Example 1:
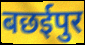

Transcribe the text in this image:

बछईपुर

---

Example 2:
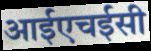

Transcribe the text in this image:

आईएचईसी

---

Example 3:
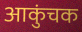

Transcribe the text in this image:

आकुंचक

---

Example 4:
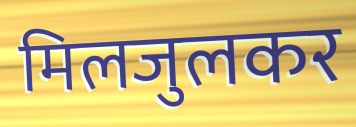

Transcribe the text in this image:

मिलजुलकर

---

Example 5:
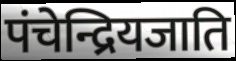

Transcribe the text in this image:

पंचेन्द्रियजाति